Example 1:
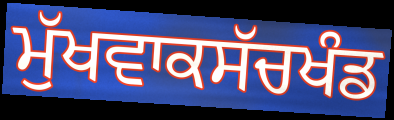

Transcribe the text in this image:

ਮੁੱਖਵਾਕਸੱਚਖੰਡ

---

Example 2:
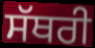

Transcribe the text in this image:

ਸੱਥਰੀ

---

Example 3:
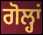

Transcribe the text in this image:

ਗੋਲ੍ਹਾਂ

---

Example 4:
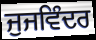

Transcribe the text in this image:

ਜੁਜਵਿੰਦਰ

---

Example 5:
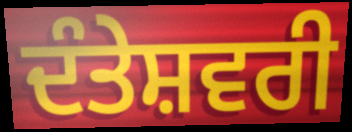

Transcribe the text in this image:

ਦੰਤੇਸ਼ਵਰੀ